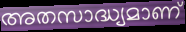
അതസാദ്ധ്യമാണ്